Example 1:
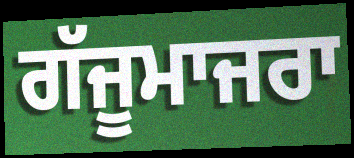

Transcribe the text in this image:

ਗੱਜੂਮਾਜਰਾ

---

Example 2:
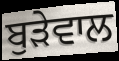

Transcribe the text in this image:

ਬੁੜੇਵਾਲ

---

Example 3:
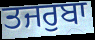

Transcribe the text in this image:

ਤਜਰੁਬਾ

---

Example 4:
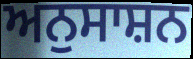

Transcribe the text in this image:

ਅਨੁਸਾਸ਼ਨ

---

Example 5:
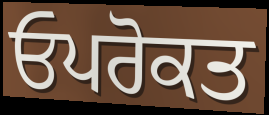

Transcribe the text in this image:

ਓਪਰੋਕਤ